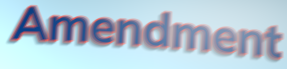
Amendment